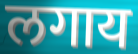
लगाय